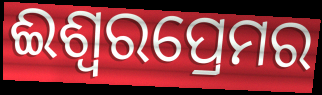
ଈଶ୍ୱରପ୍ରେମର